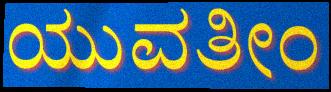
ಯುವತೀಂ